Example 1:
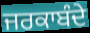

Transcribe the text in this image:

ਜਰਕਾਬੰਦੇ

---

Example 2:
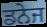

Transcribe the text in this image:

ਡਨੇਜ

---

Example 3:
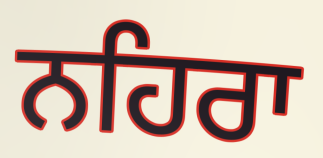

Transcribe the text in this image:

ਨਹਿਰਾ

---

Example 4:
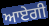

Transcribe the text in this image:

ਆਏਗੀ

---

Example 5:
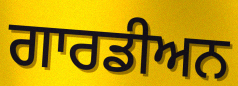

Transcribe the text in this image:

ਗਾਰਡੀਅਨ